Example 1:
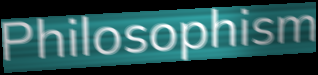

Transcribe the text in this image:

Philosophism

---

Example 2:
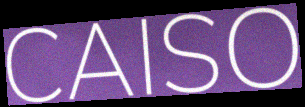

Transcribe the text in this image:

CAISO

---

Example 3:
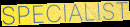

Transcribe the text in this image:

SPECIALIST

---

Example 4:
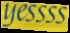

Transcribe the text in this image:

yessss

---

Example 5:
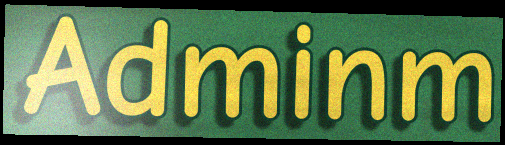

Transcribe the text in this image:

Adminm